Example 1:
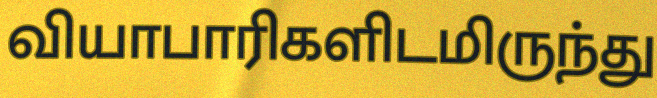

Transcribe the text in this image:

வியாபாரிகளிடமிருந்து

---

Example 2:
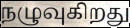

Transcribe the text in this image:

நழுவுகிறது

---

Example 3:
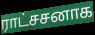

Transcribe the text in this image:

ராட்சசனாக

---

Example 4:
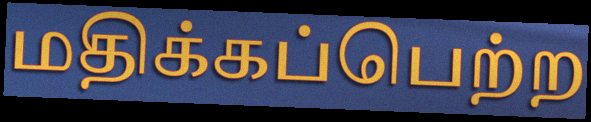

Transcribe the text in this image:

மதிக்கப்பெற்ற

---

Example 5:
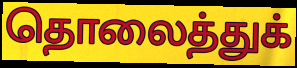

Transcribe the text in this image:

தொலைத்துக்